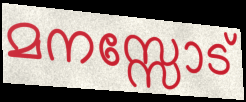
മനസ്സോട്